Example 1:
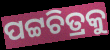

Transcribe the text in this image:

ପଟ୍ଟଚିତ୍ରକୁ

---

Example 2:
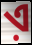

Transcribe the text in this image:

ଏ଼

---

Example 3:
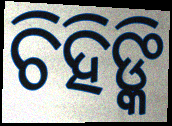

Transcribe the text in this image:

ଚିହିଙ୍କି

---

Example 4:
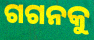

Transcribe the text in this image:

ଗଗନକୁ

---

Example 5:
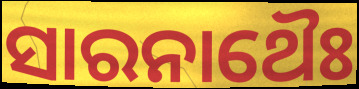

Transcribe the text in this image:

ସାରନାଥୈଃ